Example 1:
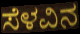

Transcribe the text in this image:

ಸೆಳವಿನ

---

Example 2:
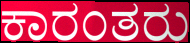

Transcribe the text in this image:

ಕಾರಂತರು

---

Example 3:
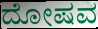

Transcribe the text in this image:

ದೋಷವ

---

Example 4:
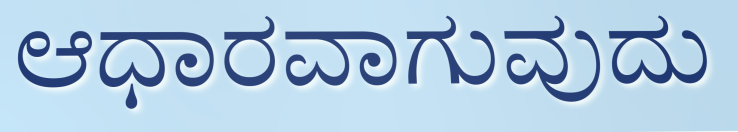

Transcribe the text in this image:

ಆಧಾರವಾಗುವುದು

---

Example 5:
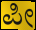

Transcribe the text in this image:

ಪೀ